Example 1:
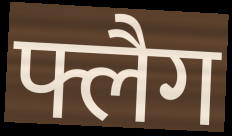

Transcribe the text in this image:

फ्लैग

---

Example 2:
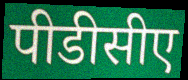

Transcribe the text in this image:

पीडीसीए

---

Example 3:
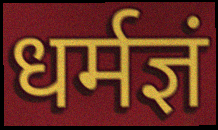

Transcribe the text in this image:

धर्मज्ञं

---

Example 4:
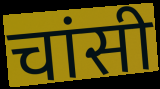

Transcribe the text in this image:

चांसी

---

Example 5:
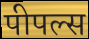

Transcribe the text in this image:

पीपल्स